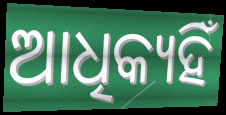
ଆଧିକ୍ୟହିଁ